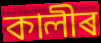
কালীৰ